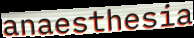
anaesthesia